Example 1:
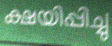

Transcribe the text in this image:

ക്ഷയിപ്പിച്ചു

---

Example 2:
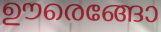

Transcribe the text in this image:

ഊരെങ്ങോ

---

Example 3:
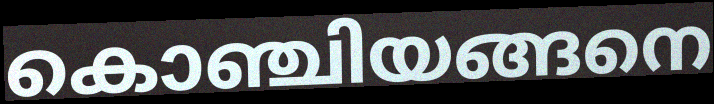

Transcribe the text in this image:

കൊഞ്ചിയങ്ങനെ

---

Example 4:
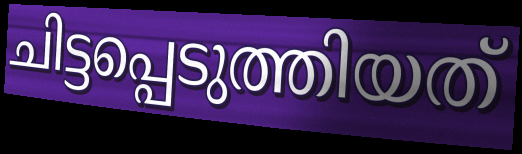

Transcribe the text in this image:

ചിട്ടപ്പെടുത്തിയത്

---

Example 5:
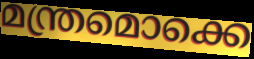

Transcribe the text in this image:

മന്ത്രമൊക്കെ